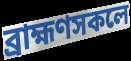
ব্ৰাহ্মণসকলে